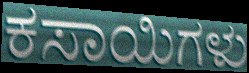
ಕಸಾಯಿಗಳು